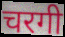
चरगी